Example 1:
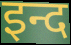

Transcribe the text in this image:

इन्द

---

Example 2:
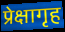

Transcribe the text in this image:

प्रेक्षागृह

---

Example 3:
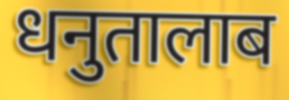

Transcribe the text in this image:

धनुतालाब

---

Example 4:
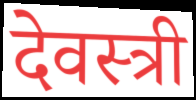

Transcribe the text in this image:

देवस्त्री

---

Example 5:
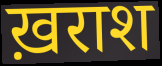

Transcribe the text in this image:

ख़राश